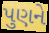
પુણને